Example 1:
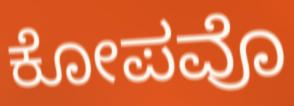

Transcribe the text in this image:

ಕೋಪವೊ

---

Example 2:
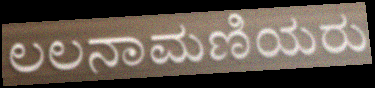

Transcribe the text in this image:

ಲಲನಾಮಣಿಯರು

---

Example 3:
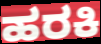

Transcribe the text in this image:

ಹರಕಿ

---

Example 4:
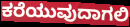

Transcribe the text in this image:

ಕರೆಯುವುದಾಗಲಿ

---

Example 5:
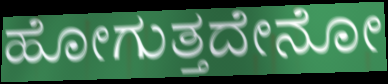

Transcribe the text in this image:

ಹೋಗುತ್ತದೇನೋ